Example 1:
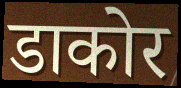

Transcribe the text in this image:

डाकोर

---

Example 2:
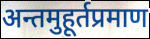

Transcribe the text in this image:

अन्तमुहूर्तप्रमाण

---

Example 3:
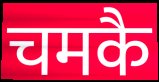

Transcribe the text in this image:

चमकै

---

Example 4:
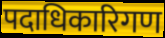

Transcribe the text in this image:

पदाधिकारिगण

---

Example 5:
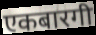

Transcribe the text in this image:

एकबारगी